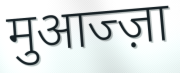
मुआज्ज़ा